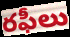
రఫీలు